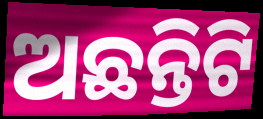
ଅଛନ୍ତିଟି